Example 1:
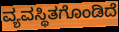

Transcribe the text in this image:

ವ್ಯವಸ್ಥಿತಗೊಂಡಿದೆ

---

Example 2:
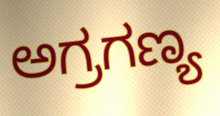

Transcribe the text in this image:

ಅಗ್ರಗಣ್ಯ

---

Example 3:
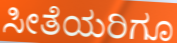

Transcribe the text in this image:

ಸೀತೆಯರಿಗೂ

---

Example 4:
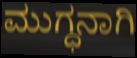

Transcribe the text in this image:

ಮುಗ್ಧನಾಗಿ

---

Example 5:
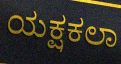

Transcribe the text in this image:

ಯಕ್ಷಕಲಾ